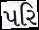
પરિ